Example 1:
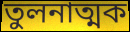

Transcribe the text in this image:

তুলনাত্মক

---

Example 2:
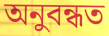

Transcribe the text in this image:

অনুবন্ধত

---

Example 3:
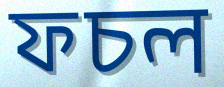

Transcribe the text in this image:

ফচল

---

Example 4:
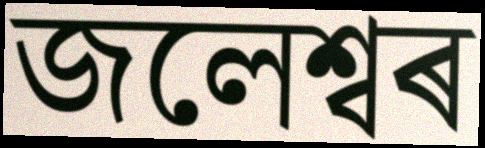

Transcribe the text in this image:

জলেশ্বৰ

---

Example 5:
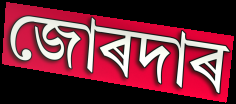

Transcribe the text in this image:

জোৰদাৰ